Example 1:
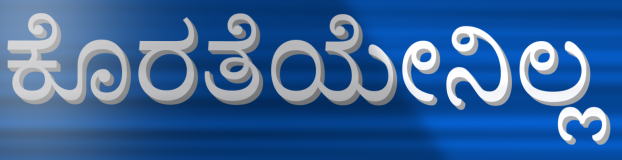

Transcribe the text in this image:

ಕೊರತೆಯೇನಿಲ್ಲ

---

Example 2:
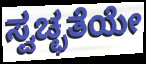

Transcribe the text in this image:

ಸ್ವಚ್ಛತೆಯೇ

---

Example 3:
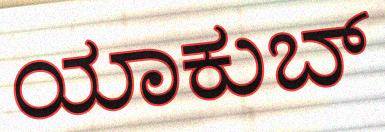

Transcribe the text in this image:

ಯಾಕುಬ್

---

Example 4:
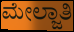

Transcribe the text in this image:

ಮೇಲ್ಜಾತಿ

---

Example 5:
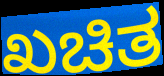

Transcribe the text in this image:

ಖಚಿತ